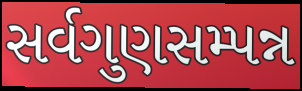
સર્વગુણસમ્પન્ન